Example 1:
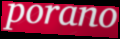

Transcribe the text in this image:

porano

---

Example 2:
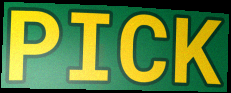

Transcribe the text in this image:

PICK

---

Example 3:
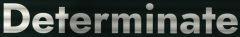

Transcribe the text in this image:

Determinate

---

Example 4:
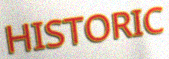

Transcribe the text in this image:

HISTORIC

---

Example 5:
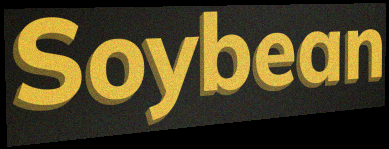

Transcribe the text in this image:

Soybean